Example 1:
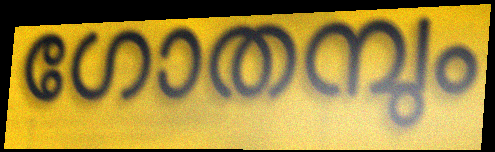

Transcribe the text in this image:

ഗോതമ്പും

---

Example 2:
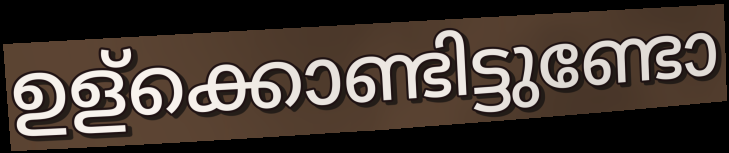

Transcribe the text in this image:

ഉള്ക്കൊണ്ടിട്ടുണ്ടോ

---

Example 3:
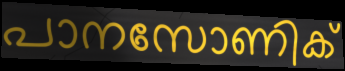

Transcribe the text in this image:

പാനസോണിക്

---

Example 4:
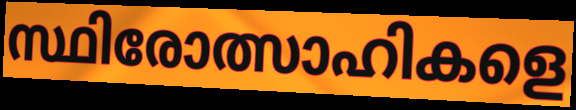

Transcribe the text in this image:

സ്ഥിരോത്സാഹികളെ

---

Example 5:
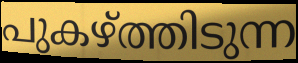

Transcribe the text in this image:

പുകഴ്ത്തിടുന്ന